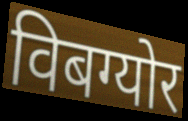
विबग्योर